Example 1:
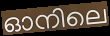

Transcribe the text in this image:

ഓനിലെ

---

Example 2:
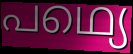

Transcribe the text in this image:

പഥ്യെ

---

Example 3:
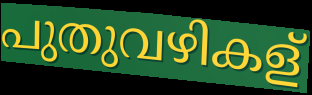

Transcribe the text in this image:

പുതുവഴികള്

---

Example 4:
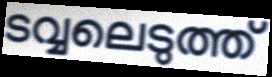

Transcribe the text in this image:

ടവ്വലെടുത്ത്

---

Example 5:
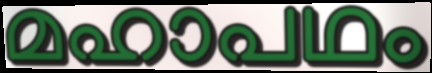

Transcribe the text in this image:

മഹാപഥം